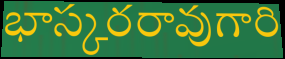
భాస్కరరావుగారి